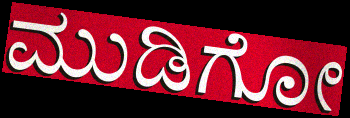
ಮುಡಿಗೋ